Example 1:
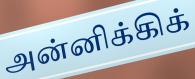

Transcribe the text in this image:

அன்னிக்கிக்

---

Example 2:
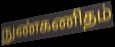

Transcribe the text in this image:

நுண்கணிதம்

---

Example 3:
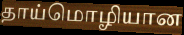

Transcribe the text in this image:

தாய்மொழியான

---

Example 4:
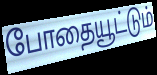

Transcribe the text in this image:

போதையூட்டும்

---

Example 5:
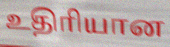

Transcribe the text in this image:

உதிரியான